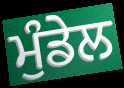
ਮੁੰਡੇਲ